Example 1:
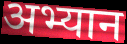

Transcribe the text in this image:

अभ्यान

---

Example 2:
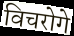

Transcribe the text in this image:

विचरोगे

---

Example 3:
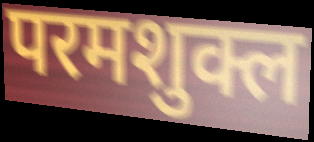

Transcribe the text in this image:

परमशुक्ल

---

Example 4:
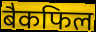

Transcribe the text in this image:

बैकफिल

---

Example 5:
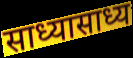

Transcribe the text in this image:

साध्यासाध्य